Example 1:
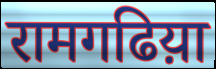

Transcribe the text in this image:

रामगढिय़ा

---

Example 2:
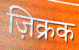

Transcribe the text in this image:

ज़िक्रक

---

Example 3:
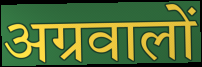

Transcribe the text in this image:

अग्रवालों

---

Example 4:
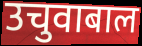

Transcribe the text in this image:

उचुवाबाल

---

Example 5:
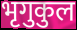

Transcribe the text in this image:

भृगुकुल